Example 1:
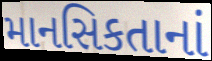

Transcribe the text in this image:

માનસિકતાનાં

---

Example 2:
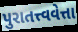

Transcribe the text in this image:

પુરાતત્ત્વવેત્તા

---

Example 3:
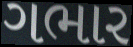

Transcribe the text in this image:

ગભાર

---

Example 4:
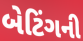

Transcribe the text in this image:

બેટિંગની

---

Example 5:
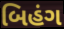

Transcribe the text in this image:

બિહંગ